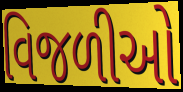
વિજળીઓ